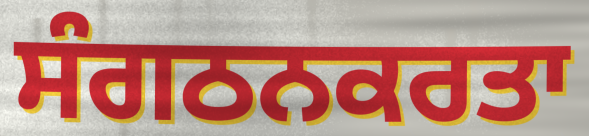
ਸੰਗਠਨਕਰਤਾ